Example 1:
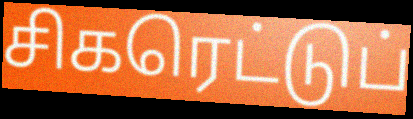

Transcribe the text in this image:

சிகரெட்டுப்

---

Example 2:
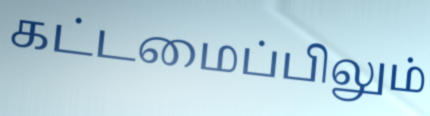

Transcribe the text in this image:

கட்டமைப்பிலும்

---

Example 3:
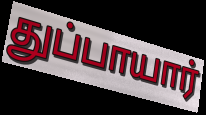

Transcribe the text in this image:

துப்பாயார்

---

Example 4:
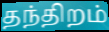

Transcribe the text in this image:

தந்திறம்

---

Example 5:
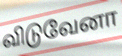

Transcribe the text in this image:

விடுவேனா